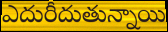
ఎదురీదుతున్నాయి